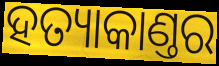
ହତ୍ୟାକାଣ୍ତର